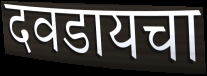
दवडायचा